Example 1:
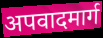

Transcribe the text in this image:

अपवादमार्ग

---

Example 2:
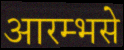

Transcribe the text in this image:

आरम्भसे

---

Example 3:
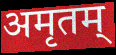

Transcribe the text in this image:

अमृतम्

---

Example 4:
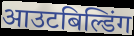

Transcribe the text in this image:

आउटबिल्डिंग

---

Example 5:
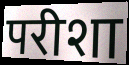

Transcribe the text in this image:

परीशा